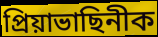
প্ৰিয়াভাছিনীক